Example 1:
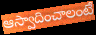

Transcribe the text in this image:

ఆస్వాదించాలంటే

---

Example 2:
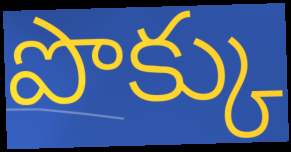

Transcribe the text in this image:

పొక్కు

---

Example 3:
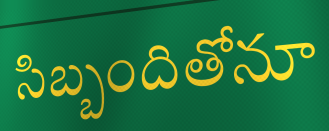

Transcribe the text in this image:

సిబ్బందితోనూ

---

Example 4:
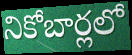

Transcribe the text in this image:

నికోబార్లలో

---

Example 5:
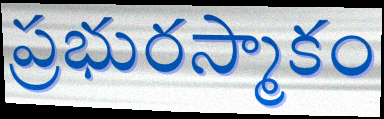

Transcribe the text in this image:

ప్రభురస్మాకం